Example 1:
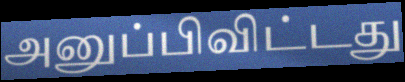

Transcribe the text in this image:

அனுப்பிவிட்டது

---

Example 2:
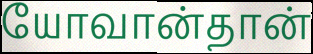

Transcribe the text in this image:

யோவான்தான்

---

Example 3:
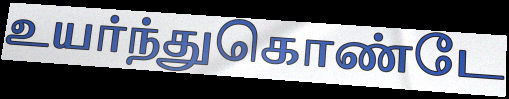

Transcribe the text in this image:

உயர்ந்துகொண்டே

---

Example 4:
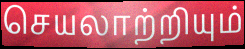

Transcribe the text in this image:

செயலாற்றியும்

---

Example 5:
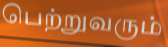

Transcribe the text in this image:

பெற்றுவரும்